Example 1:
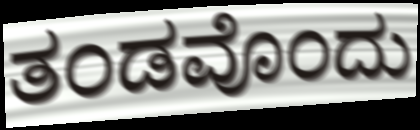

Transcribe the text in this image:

ತಂಡವೊಂದು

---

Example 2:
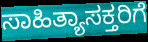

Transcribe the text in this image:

ಸಾಹಿತ್ಯಾಸಕ್ತರಿಗೆ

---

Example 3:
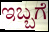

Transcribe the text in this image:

ಇಬ್ಬಗೆ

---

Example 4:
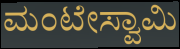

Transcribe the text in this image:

ಮಂಟೇಸ್ವಾಮಿ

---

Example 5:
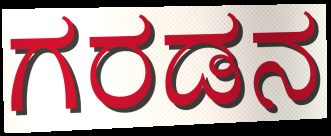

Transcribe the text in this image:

ಗರಡನ